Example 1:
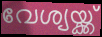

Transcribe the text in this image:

വേശ്യയ്ക്ക്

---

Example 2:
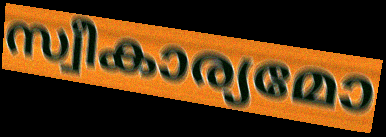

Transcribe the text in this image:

സ്വീകാര്യമോ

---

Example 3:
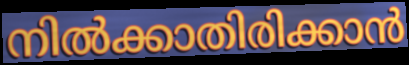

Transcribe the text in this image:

നിൽക്കാതിരിക്കാൻ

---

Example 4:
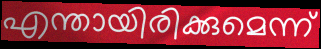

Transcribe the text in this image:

എന്തായിരിക്കുമെന്ന്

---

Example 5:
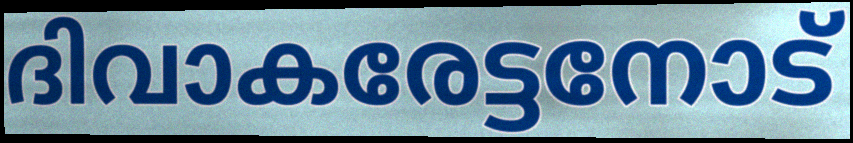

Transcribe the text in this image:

ദിവാകരേട്ടനോട്